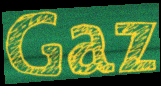
Gaz